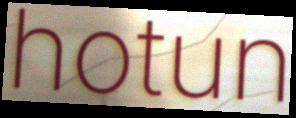
hotun